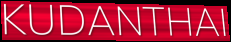
KUDANTHAI